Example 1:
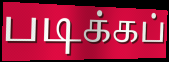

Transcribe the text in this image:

படிக்கப்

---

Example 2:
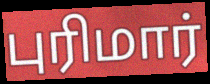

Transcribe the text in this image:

புரிமார்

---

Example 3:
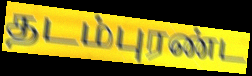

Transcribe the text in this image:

தடம்புரண்ட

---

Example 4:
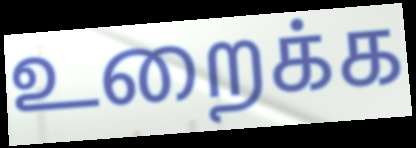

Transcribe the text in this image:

உறைக்க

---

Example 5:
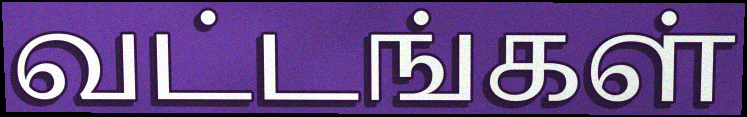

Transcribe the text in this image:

வட்டங்கள்